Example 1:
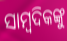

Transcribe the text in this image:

ସାମ୍ବଦିକଙ୍କୁ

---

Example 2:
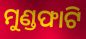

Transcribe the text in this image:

ମୁଣ୍ଡଫାଟି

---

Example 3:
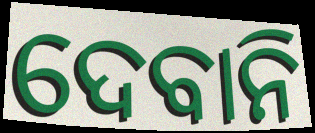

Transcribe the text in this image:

ଦେବାନି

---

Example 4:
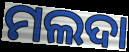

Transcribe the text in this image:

ମଲଦା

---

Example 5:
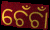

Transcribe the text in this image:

ଚେଁଚାଁ